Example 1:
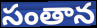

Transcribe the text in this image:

సంతాన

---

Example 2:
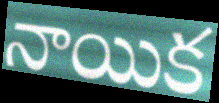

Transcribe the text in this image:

నాయిక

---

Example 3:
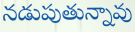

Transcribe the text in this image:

నడుపుతున్నావు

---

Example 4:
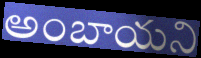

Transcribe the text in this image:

అంబాయని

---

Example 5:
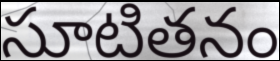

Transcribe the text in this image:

సూటితనం